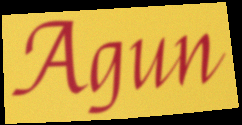
Agun